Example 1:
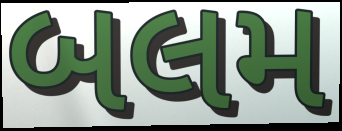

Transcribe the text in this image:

બલમ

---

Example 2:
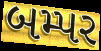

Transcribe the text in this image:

બમ્પર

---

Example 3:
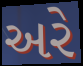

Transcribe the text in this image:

અરે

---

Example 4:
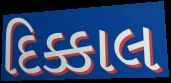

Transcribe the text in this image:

દિક્કાલ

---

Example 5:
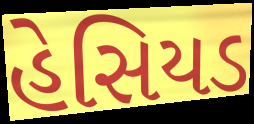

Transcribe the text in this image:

હેસિયડ